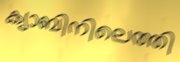
ക്യാബിനിലെത്തി